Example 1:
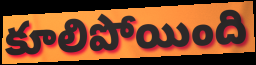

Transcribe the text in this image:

కూలిపోయింది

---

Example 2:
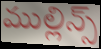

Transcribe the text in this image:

ముల్లిన్స్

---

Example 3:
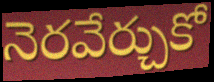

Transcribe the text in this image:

నెరవేర్చుకో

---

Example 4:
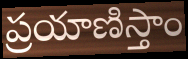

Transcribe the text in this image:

ప్రయాణిస్తాం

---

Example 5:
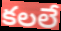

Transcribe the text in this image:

కలలే